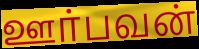
ஊர்பவன்